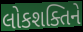
લોકશક્તિને